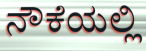
ನೌಕೆಯಲ್ಲಿ